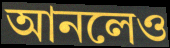
আনলেও